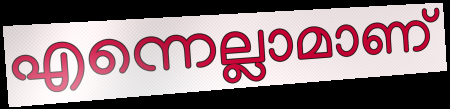
എന്നെല്ലാമാണ്